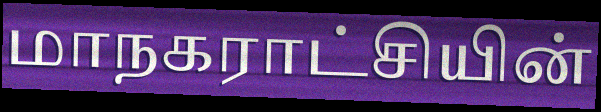
மாநகராட்சியின்